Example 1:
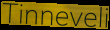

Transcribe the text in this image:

Tinneveli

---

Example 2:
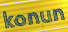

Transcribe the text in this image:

konun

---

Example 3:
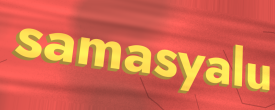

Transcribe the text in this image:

samasyalu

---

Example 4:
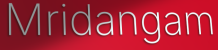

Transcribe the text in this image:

Mridangam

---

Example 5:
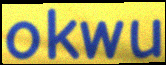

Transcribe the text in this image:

okwu